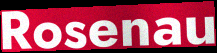
Rosenau